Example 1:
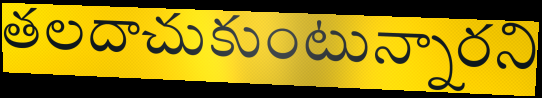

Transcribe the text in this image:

తలదాచుకుంటున్నారని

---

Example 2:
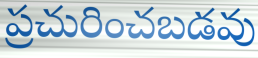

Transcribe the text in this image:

ప్రచురించబడవు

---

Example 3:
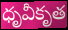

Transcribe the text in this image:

ధృవీకృత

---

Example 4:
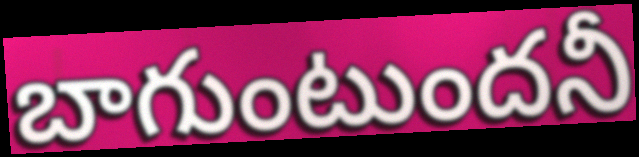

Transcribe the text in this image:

బాగుంటుందనీ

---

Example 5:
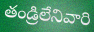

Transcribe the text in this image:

తండ్రిలేనివారి